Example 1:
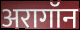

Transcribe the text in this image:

अरागॉन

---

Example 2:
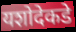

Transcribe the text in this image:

यशोदेकडे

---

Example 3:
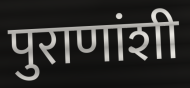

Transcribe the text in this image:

पुराणांशी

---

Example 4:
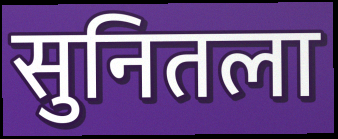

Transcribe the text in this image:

सुनितला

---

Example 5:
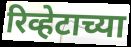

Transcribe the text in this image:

रिव्हेटाच्या